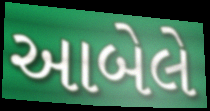
આબેલે